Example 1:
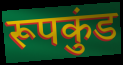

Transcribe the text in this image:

रूपकुंड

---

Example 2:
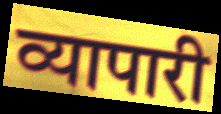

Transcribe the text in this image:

व्यापारी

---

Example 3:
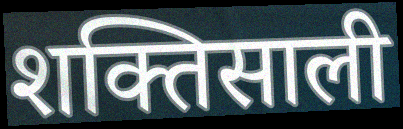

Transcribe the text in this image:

शक्तिसाली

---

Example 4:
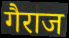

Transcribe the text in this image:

गैराज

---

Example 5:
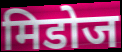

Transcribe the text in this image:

मिडोज